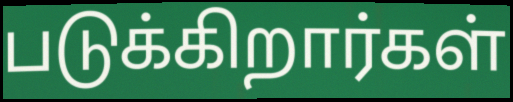
படுக்கிறார்கள்